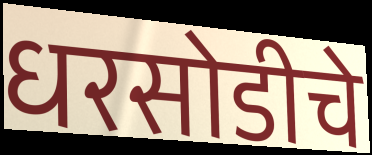
धरसोडीचे